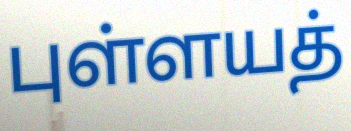
புள்ளயத்